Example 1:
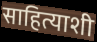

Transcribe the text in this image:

साहित्याशी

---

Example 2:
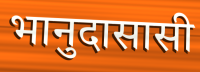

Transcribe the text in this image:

भानुदासासी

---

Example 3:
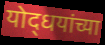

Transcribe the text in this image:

योद्धयांच्या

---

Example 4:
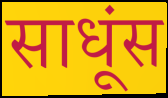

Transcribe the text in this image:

साधूंस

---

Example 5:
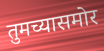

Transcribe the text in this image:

तुमच्यासमोर